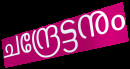
ചന്ദ്രേട്ടനും